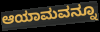
ಆಯಾಮವನ್ನೂ